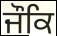
ਜੌਕਿ